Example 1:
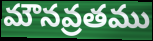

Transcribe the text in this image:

మౌనవ్రతము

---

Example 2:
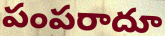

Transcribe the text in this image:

పంపరాదూ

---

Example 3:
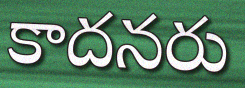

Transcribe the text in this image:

కాదనరు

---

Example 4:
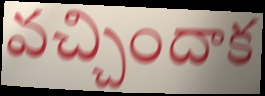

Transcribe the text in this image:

వచ్చిందాక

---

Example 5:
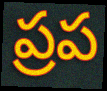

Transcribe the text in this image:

ప్రప